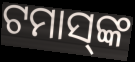
ଟମାସ୍‌ଙ୍କ